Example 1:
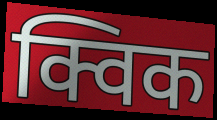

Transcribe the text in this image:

क्विक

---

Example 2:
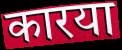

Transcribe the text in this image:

कारया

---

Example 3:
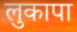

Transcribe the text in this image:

लुकापा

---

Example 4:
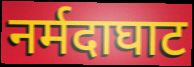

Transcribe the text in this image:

नर्मदाघाट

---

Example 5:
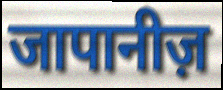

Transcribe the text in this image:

जापानीज़